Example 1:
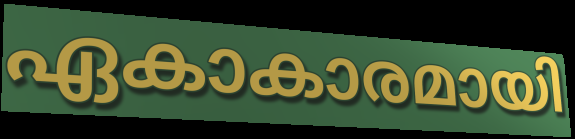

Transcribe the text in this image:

ഏകാകാരമായി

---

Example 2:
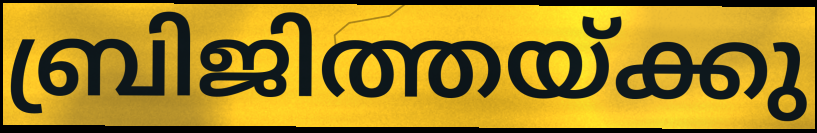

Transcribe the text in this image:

ബ്രിജിത്തയ്ക്കു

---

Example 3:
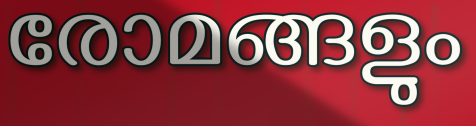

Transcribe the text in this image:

രോമങ്ങളും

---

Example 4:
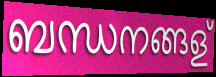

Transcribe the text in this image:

ബന്ധനങ്ങള്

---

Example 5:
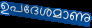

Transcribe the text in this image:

ഉപദേശമാണു